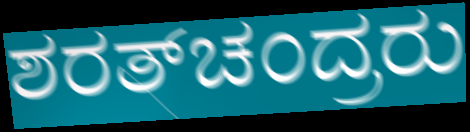
ಶರತ್‌ಚಂದ್ರರು